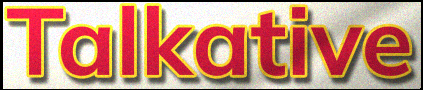
Talkative